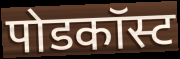
पोडकॉस्ट